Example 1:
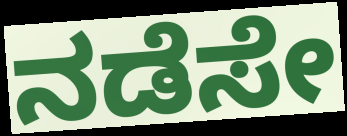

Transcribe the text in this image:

ನಡೆಸೇ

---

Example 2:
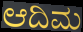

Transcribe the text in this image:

ಆದಿಮ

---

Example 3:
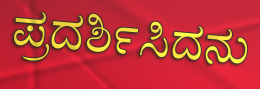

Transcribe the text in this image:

ಪ್ರದರ್ಶಿಸಿದನು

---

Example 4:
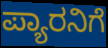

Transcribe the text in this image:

ಪ್ಯಾರನಿಗೆ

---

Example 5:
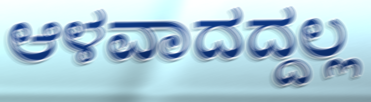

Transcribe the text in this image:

ಆಳವಾದದ್ದಲ್ಲ